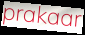
prakaar